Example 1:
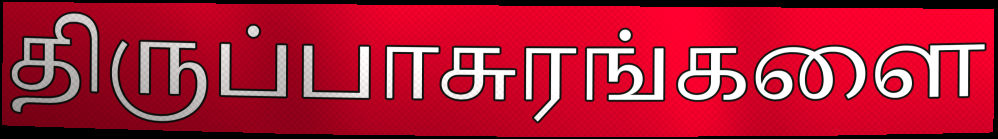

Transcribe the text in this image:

திருப்பாசுரங்களை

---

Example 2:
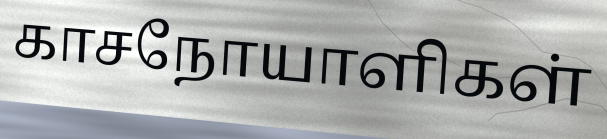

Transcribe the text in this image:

காசநோயாளிகள்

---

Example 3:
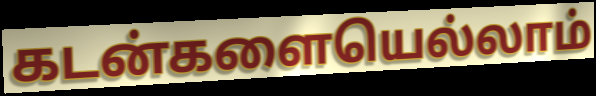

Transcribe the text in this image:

கடன்களையெல்லாம்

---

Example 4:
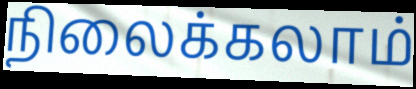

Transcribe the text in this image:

நிலைக்கலாம்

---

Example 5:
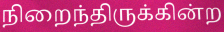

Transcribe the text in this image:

நிறைந்திருக்கின்ற